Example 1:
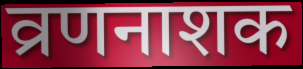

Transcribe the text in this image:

व्रणनाशक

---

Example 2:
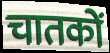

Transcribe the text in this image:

चातकों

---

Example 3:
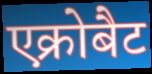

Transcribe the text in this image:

एक्रोबैट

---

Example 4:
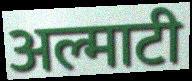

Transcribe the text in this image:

अल्माटी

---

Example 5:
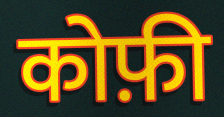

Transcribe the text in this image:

कोफ़ी